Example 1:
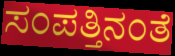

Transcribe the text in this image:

ಸಂಪತ್ತಿನಂತೆ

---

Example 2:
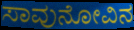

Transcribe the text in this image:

ಸಾವುನೋವಿನ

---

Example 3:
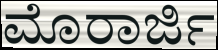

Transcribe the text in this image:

ಮೊರಾರ್ಜಿ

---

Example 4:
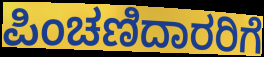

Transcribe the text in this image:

ಪಿಂಚಣಿದಾರರಿಗೆ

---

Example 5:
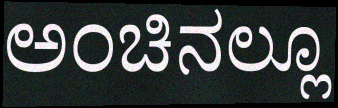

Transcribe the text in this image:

ಅಂಚಿನಲ್ಲೂ